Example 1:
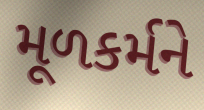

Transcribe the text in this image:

મૂળકર્મને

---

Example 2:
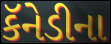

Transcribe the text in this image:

કૅનેડીના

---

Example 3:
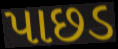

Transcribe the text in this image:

પાછડ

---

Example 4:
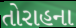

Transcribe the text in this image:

તોરાહના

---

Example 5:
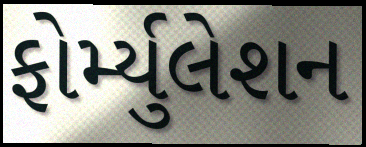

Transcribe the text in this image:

ફોર્મ્યુલેશન